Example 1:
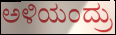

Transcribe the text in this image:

ಅಳಿಯಂದ್ರು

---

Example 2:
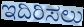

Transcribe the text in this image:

ಇದಿರಿಸಲು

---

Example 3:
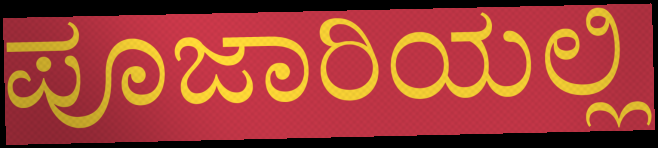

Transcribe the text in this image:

ಪೂಜಾರಿಯಲ್ಲಿ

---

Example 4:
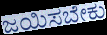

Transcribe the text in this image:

ಜಯಿಸಬೇಕು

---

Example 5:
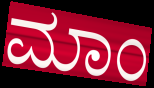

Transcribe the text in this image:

ಮಾಂ